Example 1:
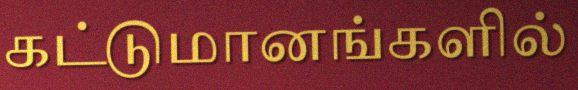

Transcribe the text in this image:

கட்டுமானங்களில்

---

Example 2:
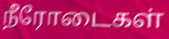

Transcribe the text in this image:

நீரோடைகள்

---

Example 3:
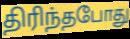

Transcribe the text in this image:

திரிந்தபோது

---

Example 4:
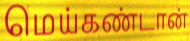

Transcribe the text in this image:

மெய்கண்டான்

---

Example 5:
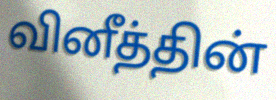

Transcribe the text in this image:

வினீத்தின்